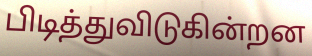
பிடித்துவிடுகின்றன